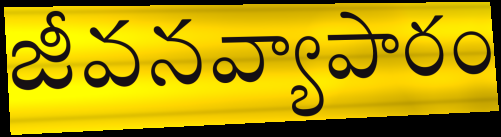
జీవనవ్యాపారం